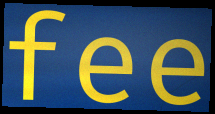
fee